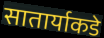
सातार्याकडे